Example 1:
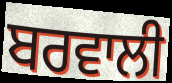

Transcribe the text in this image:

ਬਰਵਾਲੀ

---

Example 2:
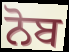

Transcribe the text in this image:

ਨੋਬ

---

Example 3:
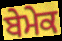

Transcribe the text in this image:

ਬੇਮੇਕ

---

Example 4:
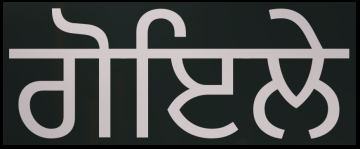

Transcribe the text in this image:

ਗੋਇਲੇ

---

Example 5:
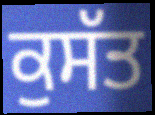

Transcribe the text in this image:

ਕੁਸੱਤ